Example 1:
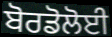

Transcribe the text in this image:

ਬੋਰਡੋਲੋਈ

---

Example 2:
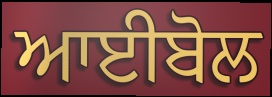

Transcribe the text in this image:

ਆਈਬੋਲ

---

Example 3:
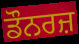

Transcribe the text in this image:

ਡੌਨਰਜ਼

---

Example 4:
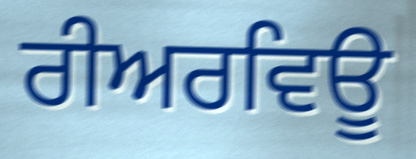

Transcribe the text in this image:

ਰੀਅਰਵਿਊ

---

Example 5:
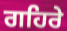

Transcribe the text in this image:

ਗਹਿਰੇ